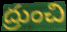
ద్రుంచి